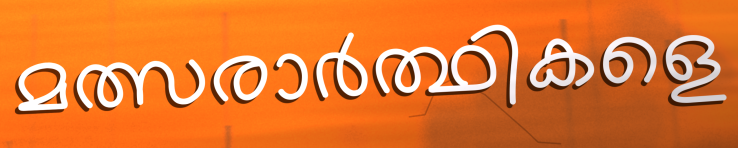
മത്സരാർത്ഥികളെ